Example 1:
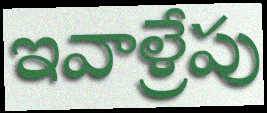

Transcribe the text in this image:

ఇవాళ్రేపు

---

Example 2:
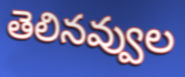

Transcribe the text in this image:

తెలినవ్వుల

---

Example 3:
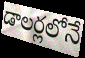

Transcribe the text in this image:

డాలర్లలోనే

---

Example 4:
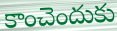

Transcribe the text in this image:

కాంచెందుకు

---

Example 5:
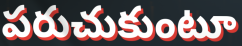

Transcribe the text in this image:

పరుచుకుంటూ